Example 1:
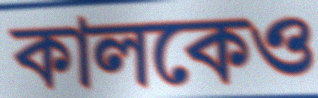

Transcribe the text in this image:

কালকেও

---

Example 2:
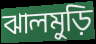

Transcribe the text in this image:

ঝালমুড়ি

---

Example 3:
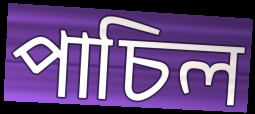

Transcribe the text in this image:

পাচিল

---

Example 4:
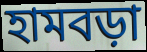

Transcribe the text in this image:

হামবড়া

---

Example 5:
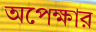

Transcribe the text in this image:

অপেক্ষার